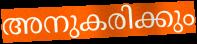
അനുകരിക്കും